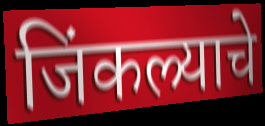
जिंकल्याचे